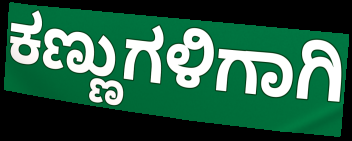
ಕಣ್ಣುಗಳಿಗಾಗಿ